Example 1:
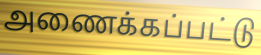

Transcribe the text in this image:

அணைக்கப்பட்டு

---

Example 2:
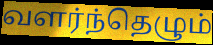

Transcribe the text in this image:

வளர்ந்தெழும்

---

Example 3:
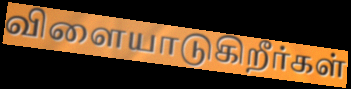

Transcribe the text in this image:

விளையாடுகிறீர்கள்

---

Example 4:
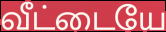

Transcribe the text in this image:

வீட்டையே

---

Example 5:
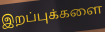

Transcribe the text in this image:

இறப்புக்களை